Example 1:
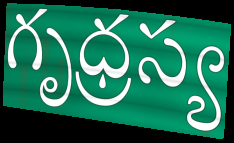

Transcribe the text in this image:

గృధ్రస్య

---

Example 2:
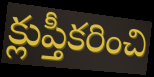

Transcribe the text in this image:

క్లుప్తీకరించి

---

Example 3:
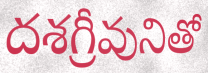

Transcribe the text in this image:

దశగ్రీవునితో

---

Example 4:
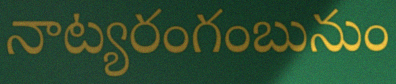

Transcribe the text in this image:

నాట్యరంగంబునుం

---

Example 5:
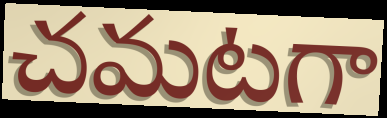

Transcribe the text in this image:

చమటగా